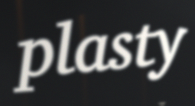
plasty